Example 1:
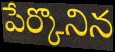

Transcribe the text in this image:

పేర్కొనిన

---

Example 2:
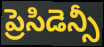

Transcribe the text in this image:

ప్రెసిడెన్సీ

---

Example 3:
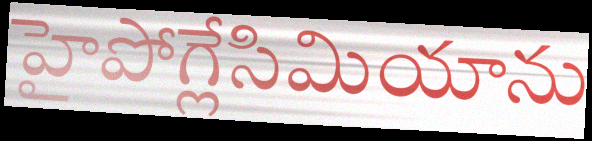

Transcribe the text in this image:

హైపోగ్లేసిమియాను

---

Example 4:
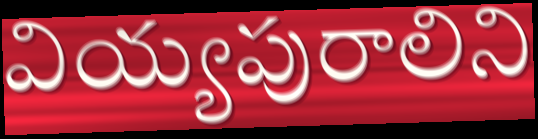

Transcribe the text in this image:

వియ్యపురాలిని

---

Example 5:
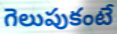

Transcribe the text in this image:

గెలుపుకంటే